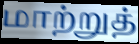
மாற்றுத்